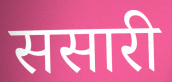
ससारी